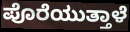
ಪೊರೆಯುತ್ತಾಳೆ